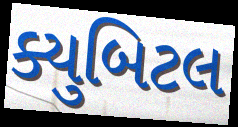
ક્યુબિટલ